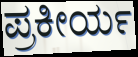
ಪ್ರಕೀರ್ಯ